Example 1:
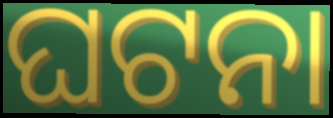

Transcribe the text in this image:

ଘଟନା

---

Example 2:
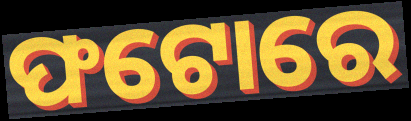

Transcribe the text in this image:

ଫଟୋରେ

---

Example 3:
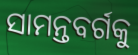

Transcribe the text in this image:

ସାମନ୍ତବର୍ଗକୁ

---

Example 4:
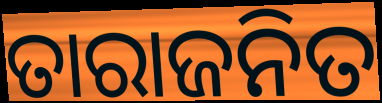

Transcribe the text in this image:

ତାରାଜନିତ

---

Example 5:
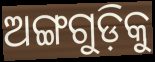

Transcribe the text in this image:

ଅଙ୍ଗଗୁଡ଼ିକୁ